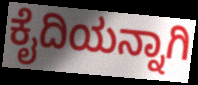
ಕೈದಿಯನ್ನಾಗಿ